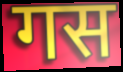
गस